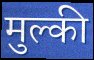
मुल्की